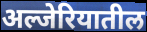
अल्जेरियातील